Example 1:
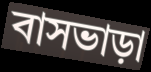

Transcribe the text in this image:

বাসভাড়া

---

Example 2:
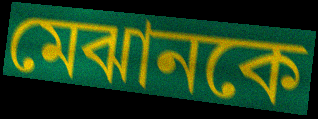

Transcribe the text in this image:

মেঝানকে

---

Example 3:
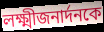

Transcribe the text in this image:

লক্ষ্মীজনার্দনকে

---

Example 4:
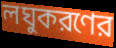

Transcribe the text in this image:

লঘুকরণের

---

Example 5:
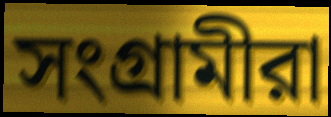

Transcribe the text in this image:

সংগ্রামীরা